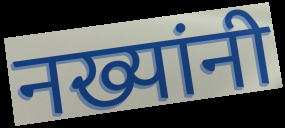
नख्यांनी